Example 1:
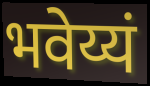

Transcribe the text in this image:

भवेय्यं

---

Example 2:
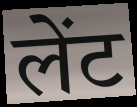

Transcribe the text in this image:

लेंट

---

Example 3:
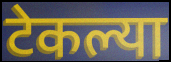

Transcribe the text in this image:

टेकल्या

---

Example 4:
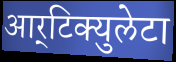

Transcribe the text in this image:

आर्टिक्युलेटा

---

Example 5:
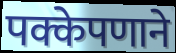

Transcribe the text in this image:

पक्केपणाने